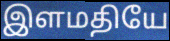
இளமதியே